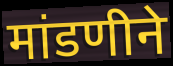
मांडणीने